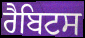
ਰੈਬਿਟਸ